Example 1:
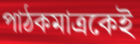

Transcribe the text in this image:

পাঠকমাত্রকেই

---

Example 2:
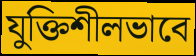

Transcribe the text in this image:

যুক্তিশীলভাবে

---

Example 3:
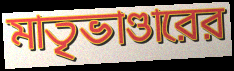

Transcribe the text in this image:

মাতৃভাণ্ডারের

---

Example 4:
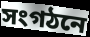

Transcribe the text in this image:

সংগঠনে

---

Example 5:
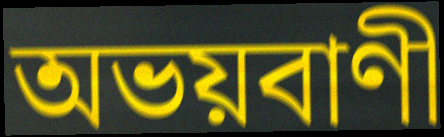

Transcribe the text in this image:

অভয়বাণী